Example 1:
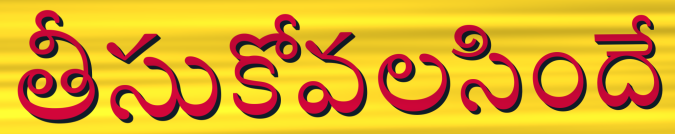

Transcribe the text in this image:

తీసుకోవలసిందే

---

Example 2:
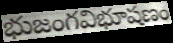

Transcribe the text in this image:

భుజంగవిభూషణం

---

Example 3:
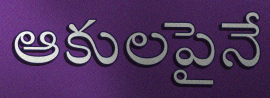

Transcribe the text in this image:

ఆకులపైనే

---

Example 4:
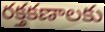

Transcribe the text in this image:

రక్తకణాలకు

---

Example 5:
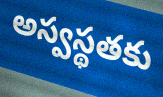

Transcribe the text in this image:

అస్వస్థతకు